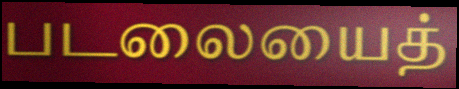
படலையைத்